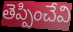
తెప్పించేవి